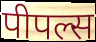
पीपल्स